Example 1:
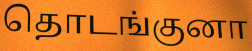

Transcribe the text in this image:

தொடங்குனா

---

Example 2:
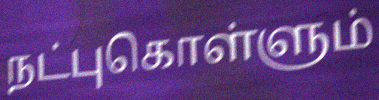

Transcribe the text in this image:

நட்புகொள்ளும்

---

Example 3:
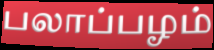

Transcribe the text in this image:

பலாப்பழம்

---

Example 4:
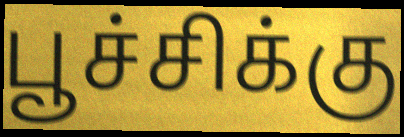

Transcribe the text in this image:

பூச்சிக்கு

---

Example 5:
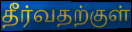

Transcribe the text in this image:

தீர்வதற்குள்